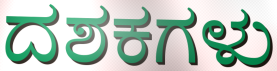
ದಶಕಗಳು